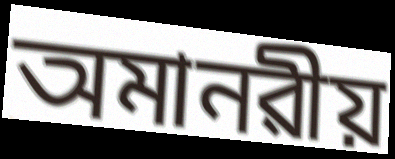
অমানৱীয়